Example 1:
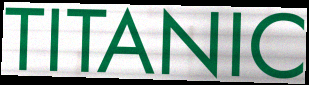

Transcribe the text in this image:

TITANIC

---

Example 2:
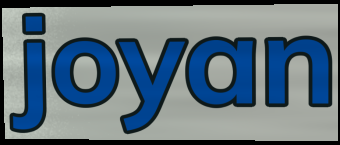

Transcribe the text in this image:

joyan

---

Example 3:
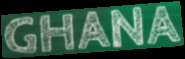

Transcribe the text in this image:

GHANA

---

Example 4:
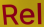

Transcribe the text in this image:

Rel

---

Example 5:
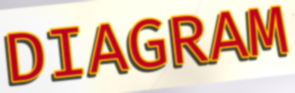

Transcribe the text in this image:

DIAGRAM